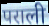
पराली